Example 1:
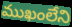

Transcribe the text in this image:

ముఖంలేని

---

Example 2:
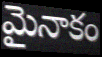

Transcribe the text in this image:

మైనాకం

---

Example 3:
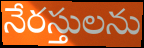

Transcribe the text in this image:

నేరస్తులను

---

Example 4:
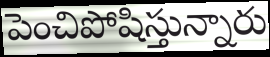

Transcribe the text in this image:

పెంచిపోషిస్తున్నారు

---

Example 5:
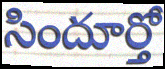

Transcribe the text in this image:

సిందూర్తో